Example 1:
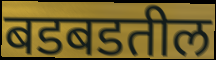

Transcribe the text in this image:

बडबडतील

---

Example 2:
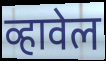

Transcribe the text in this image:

व्हावेल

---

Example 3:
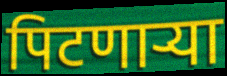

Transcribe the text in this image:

पिटणाऱ्या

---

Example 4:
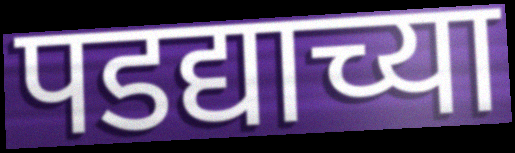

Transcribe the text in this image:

पडद्याच्या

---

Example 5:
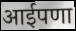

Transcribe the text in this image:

आईपणा